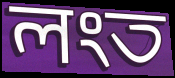
লংত